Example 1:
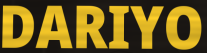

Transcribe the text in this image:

DARIYO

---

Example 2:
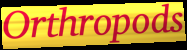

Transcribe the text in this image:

Orthropods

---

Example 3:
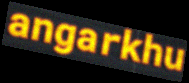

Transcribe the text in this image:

angarkhu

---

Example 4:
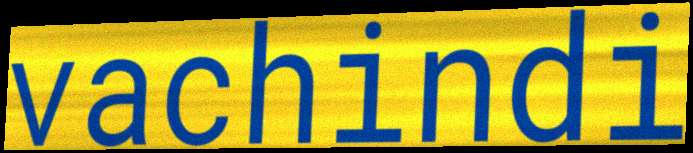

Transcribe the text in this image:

vachindi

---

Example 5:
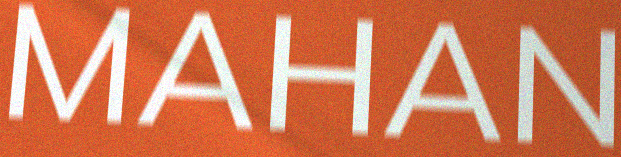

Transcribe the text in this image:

MAHAN